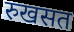
रुखसत